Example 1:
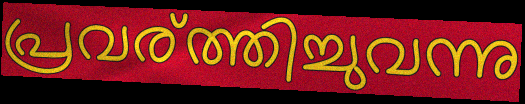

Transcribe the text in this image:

പ്രവര്ത്തിച്ചുവന്നു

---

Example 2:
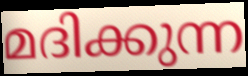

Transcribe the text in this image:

മദിക്കുന്ന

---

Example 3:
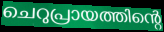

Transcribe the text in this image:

ചെറുപ്രായത്തിന്റെ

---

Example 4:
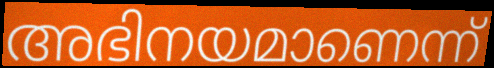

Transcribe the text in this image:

അഭിനയമാണെന്ന്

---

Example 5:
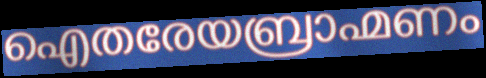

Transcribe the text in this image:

ഐതരേയബ്രാഹ്മണം